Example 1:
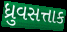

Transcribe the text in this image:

ધ્રુવસત્તાક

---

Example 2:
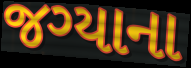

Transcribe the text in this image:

જગ્યાના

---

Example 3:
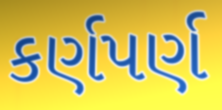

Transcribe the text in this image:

કર્ણપર્ણ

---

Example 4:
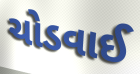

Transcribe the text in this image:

ચોડવાઈ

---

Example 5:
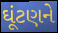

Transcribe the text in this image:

ઘૂંટણને